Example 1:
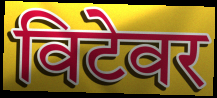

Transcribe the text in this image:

विटेवर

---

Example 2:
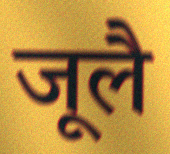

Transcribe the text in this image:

जूलै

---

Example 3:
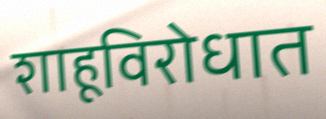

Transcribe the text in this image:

शाहूविरोधात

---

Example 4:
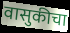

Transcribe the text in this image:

वासुकीचा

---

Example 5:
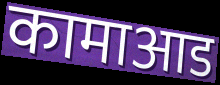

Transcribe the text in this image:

कामाआड